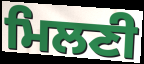
ਮਿਲਣੀ